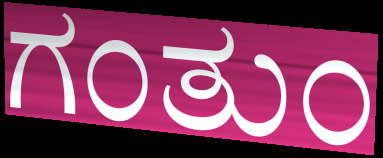
ಗಂತುಂ